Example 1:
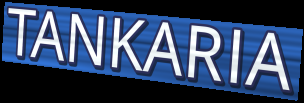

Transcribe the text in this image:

TANKARIA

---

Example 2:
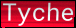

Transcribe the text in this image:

Tyche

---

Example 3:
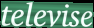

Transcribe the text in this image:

televise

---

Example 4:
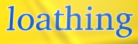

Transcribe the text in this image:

loathing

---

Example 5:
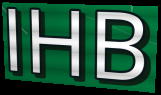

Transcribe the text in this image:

IHB